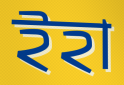
ইহা